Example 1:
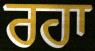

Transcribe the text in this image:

ਰਹਾ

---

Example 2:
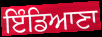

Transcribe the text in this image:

ਇੰਡਿਆਣਾ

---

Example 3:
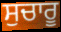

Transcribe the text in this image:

ਸੁਚਾਰੂ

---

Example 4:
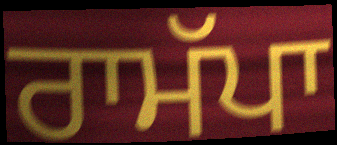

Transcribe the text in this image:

ਰਾਮੱਪਾ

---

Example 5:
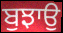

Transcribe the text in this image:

ਬੁਝਾਉ